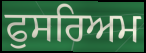
ਫੁਸਰਿਅਮ